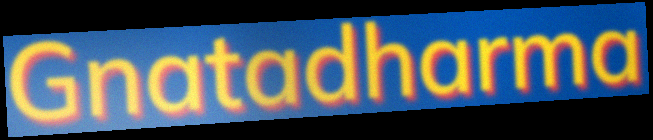
Gnatadharma